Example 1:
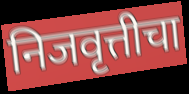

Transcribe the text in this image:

निजवृत्तीचा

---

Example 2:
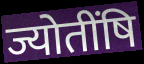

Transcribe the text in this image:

ज्योतींषि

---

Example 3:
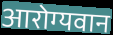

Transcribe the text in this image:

आरोग्यवान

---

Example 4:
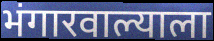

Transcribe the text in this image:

भंगारवाल्याला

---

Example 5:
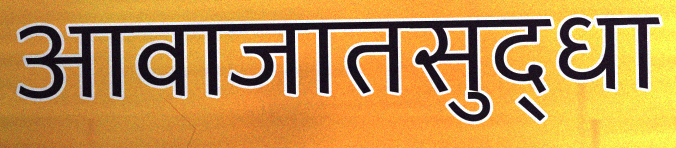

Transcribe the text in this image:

आवाजातसुद्धा